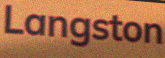
Langston